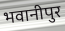
भवानीपुर